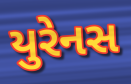
યુરેનસ